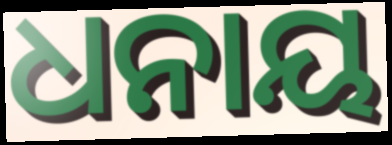
ଧନାୟ